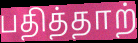
பதித்தாற்